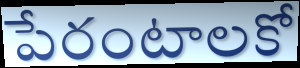
పేరంటాలకో